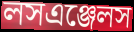
লসএঞ্জেলস